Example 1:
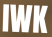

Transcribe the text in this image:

IWK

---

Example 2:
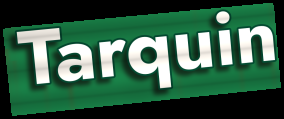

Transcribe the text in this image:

Tarquin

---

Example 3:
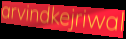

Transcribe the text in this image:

arvindkejriwal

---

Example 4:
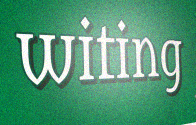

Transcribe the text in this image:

witing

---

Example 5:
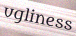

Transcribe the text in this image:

ugliness